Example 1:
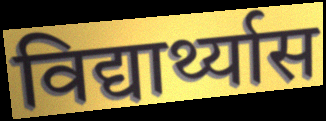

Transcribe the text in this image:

विद्यार्थ्यास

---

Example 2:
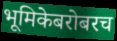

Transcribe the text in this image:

भूमिकेबरोबरच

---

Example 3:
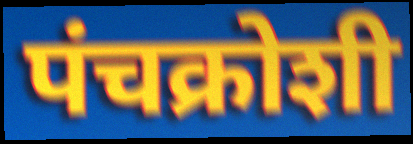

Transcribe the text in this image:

पंचक्रोशी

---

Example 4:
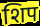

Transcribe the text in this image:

शिप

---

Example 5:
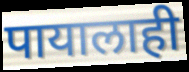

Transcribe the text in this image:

पायालाही